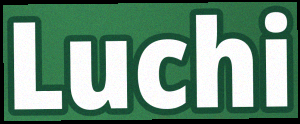
Luchi